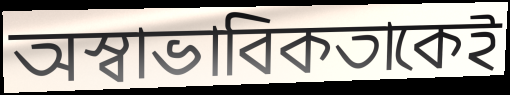
অস্বাভাবিকতাকেই